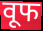
वूफ